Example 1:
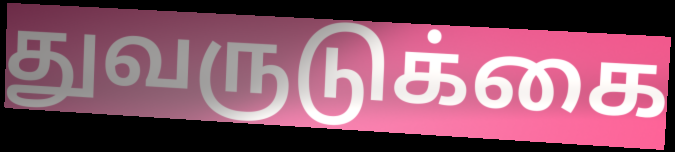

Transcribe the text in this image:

துவருடுக்கை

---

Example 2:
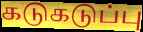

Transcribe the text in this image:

கடுகடுப்பு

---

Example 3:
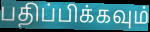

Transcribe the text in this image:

பதிப்பிக்கவும்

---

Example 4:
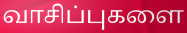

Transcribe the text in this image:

வாசிப்புகளை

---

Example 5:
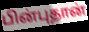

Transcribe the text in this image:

பின்புதான்